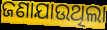
ଜଣାଯାଉଥିଲା